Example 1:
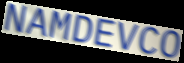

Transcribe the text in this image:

NAMDEVCO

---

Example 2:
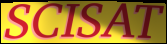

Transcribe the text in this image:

SCISAT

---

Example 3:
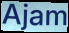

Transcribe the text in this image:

Ajam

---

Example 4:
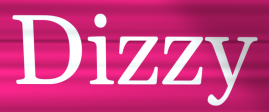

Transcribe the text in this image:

Dizzy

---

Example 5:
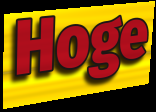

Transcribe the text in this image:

Hoge